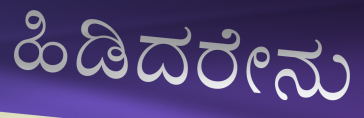
ಹಿಡಿದರೇನು